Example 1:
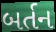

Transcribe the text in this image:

બર્તન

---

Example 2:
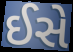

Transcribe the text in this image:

ઈસે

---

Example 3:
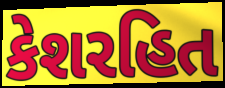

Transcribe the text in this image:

કેશરહિત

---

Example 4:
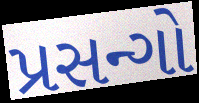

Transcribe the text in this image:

પ્રસન્ગો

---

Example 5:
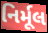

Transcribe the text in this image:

નિર્મૂલ